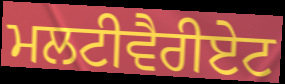
ਮਲਟੀਵੈਰੀਏਟ